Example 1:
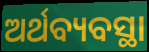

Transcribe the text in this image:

ଅର୍ଥବ୍ୟବସ୍ଥା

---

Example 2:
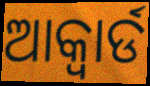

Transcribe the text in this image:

ଆକ୍ୱାର୍ଡ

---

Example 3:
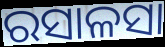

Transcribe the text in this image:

ରସାଳସା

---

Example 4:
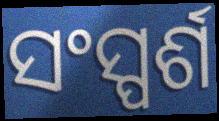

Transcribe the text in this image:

ସଂସ୍ପର୍ଶ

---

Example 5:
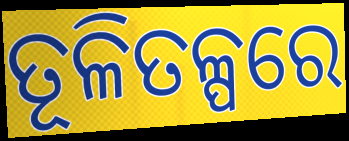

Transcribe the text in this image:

ତୂଳିତଳ୍ପରେ